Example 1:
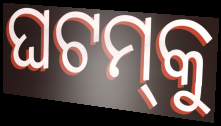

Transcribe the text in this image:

ଘଟମ୍‌କୁ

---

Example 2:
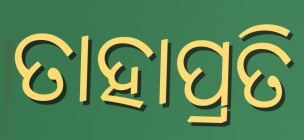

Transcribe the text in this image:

ତାହାପ୍ରତି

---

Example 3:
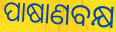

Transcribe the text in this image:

ପାଷାଣବକ୍ଷ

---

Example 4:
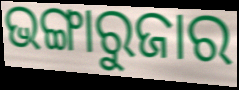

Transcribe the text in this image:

ଭଙ୍ଗାରୁଜାର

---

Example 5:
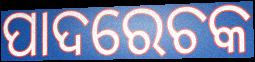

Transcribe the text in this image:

ପାଦରେଚକ